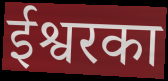
ईश्वरका